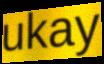
ukay